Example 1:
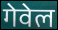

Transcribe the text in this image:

गेवेल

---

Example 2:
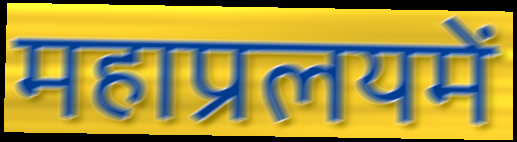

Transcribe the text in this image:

महाप्रलयमें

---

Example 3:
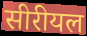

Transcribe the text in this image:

सीरीयल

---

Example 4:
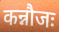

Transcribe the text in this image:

कन्नौजः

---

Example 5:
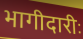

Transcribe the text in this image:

भागीदारीः